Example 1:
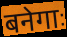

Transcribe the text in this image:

बनेगाः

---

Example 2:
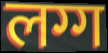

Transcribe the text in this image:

लग्ग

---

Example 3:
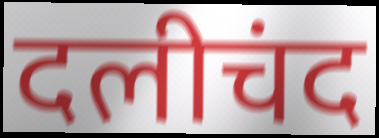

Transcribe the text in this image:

दलीचंद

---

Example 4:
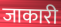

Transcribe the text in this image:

जाकारी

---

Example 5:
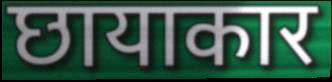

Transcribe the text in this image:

छायाकार